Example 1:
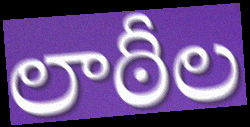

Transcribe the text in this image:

లాఠీల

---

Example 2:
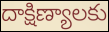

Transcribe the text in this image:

దాక్షిణ్యాలకు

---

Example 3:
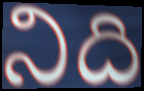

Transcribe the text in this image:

నిది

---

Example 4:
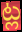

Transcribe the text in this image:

ట్ల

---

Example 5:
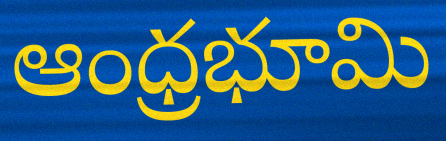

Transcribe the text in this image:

ఆంధ్రభూమి